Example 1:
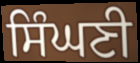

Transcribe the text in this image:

ਸਿੰਘਣੀ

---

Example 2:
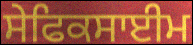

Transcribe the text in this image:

ਸੇਫਿਕਸਾਈਮ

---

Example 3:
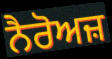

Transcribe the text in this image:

ਨੈਰੋਅਜ਼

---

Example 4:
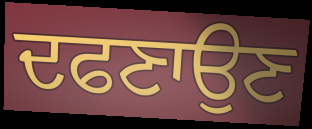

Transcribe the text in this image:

ਦਫਣਾਉਣ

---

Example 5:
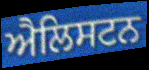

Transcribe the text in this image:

ਐਲਿਸਟਨ